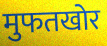
मुफतखोर